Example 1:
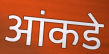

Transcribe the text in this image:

आंकडे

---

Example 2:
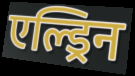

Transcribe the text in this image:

एल्ड्रिन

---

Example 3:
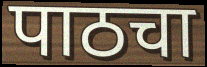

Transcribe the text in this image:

पाठचा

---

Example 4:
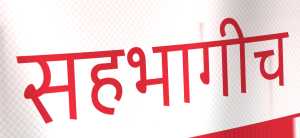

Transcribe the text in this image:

सहभागीच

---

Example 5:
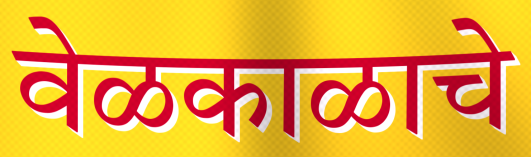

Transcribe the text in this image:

वेळकाळाचे